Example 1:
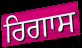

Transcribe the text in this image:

ਰਿਗਾਸ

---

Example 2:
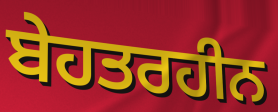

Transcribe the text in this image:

ਬੇਹਤਰਹੀਨ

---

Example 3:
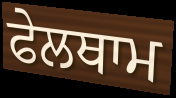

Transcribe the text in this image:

ਫੇਲਥਾਮ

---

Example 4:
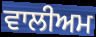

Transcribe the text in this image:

ਵਾਲੀਅਮ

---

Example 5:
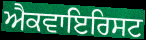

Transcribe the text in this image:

ਐਕਵਾਇਰਿਸਟ